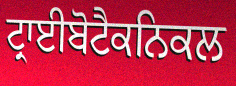
ਟ੍ਰਾਈਬੋਟੈਕਨਿਕਲ